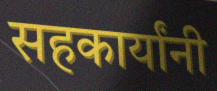
सहकार्यांनी